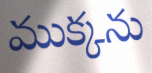
ముక్కను